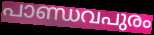
പാണ്ഡവപുരം